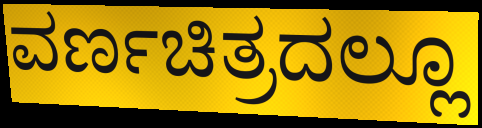
ವರ್ಣಚಿತ್ರದಲ್ಲೂ